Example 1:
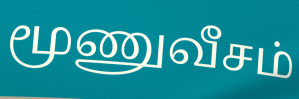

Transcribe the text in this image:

மூணுவீசம்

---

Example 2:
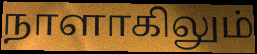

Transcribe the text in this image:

நாளாகிலும்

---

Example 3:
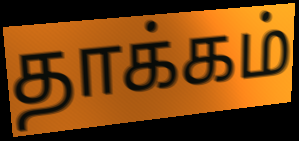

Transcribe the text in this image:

தாக்கம்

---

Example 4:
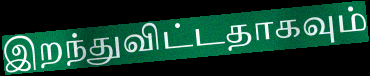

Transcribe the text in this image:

இறந்துவிட்டதாகவும்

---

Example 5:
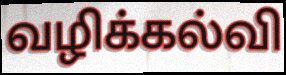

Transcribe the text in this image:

வழிக்கல்வி